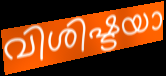
വിശിഷ്ടയാ